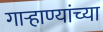
गाऱ्हाण्यांच्या